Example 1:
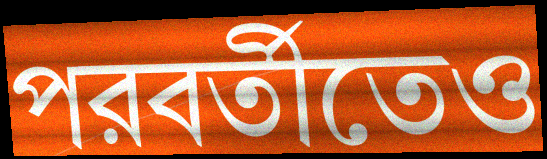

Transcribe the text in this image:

পরবর্তীতেও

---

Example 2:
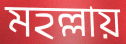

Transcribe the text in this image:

মহল্লায়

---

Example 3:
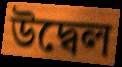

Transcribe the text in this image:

উদ্বেল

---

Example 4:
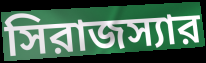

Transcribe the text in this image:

সিরাজস্যার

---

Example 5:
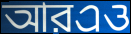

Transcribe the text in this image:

আরএও